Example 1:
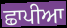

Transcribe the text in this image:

ਛਾਪੀਆ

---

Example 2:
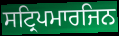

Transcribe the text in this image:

ਸਟ੍ਰਿਪਮਾਰਜਿਨ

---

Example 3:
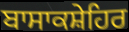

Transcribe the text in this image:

ਬਾਸਾਕਸ਼ੇਹਿਰ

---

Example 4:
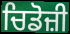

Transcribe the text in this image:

ਚਿਡੋਜ਼ੀ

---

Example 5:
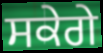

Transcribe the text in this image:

ਸਕੇਗੇ